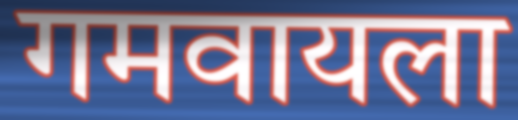
गमवायला